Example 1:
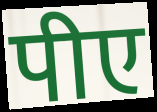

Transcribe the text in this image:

पीए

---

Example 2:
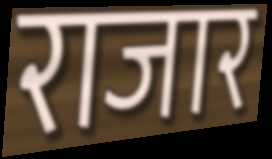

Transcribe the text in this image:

राजार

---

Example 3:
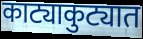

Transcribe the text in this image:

काट्याकुट्यात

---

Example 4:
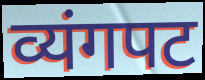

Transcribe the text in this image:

व्यंगपट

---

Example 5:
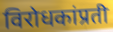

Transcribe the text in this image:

विरोधकांप्रती